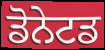
ਡੋਨੇਟਡ